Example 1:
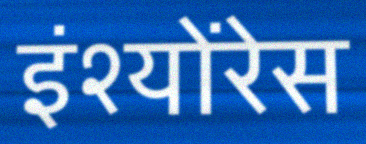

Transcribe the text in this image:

इंश्योंरेस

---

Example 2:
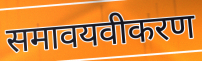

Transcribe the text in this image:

समावयवीकरण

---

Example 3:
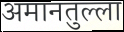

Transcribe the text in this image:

अमानतुल्ला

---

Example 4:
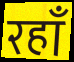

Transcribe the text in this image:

रहाँ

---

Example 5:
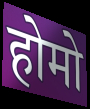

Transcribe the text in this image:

होमो